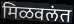
मिळवलंत